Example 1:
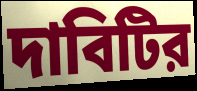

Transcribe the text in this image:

দাবিটির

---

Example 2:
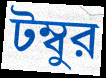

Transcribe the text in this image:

টম্বুর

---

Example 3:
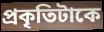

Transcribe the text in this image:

প্রকৃতিটাকে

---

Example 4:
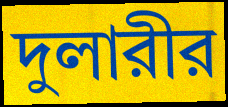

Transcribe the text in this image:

দুলারীর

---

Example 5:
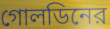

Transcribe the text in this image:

গোলডিনের